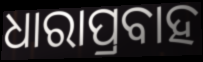
ଧାରାପ୍ରବାହ